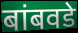
बांबवडे